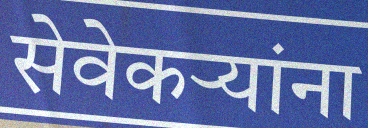
सेवेकऱ्यांना